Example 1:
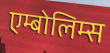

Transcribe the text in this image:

एम्बोलिम्स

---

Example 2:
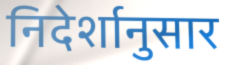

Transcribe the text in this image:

निदेर्शानुसार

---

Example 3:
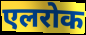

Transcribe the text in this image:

एलरोक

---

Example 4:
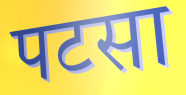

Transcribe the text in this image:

पटसा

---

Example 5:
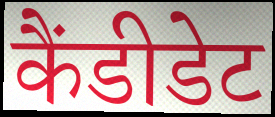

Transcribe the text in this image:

कैंडीडेट